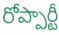
రోప్పార్టీ